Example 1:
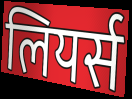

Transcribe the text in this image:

लियर्स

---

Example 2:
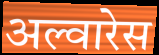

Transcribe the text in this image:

अल्वारेस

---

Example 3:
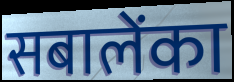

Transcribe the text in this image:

सबालेंका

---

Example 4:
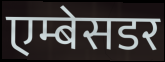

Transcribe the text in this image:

एम्बेसडर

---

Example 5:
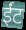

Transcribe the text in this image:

ईंट